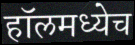
हॉलमध्येच